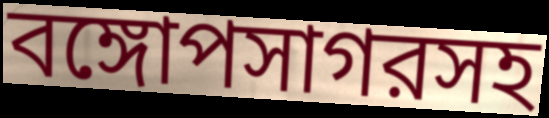
বঙ্গোপসাগরসহ